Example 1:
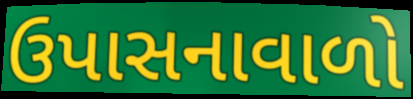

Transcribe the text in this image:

ઉપાસનાવાળો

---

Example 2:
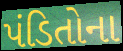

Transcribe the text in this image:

પંડિતોના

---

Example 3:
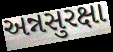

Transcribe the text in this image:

અન્નસુરક્ષા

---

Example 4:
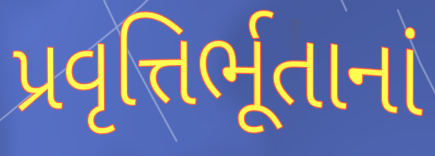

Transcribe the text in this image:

પ્રવૃત્તિર્ભૂતાનાં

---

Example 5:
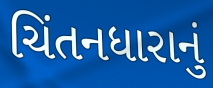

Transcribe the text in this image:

ચિંતનધારાનું